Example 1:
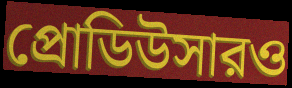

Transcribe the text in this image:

প্রোডিউসারও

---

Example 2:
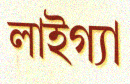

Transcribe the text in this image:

লাইগ্যা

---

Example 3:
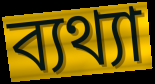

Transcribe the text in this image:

ব্যথ্যা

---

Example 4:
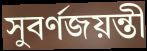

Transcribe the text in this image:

সুবর্ণজয়ন্তী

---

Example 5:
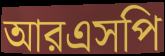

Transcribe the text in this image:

আরএসপি